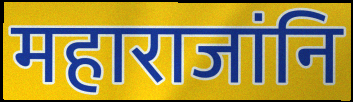
महाराजांनि